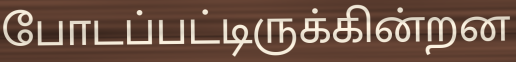
போடப்பட்டிருக்கின்றன